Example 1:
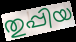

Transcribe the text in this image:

തുപ്പിയ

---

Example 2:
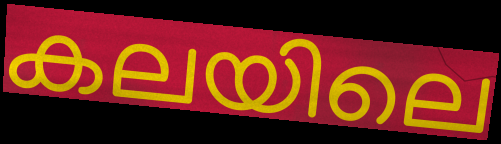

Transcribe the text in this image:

കലയിലെ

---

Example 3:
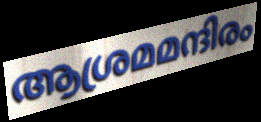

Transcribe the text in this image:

ആശ്രമമന്ദിരം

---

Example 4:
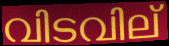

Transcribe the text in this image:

വിടവില്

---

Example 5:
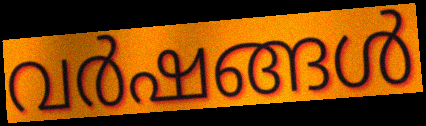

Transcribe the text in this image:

വർഷങ്ങൾ